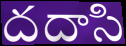
దదాసి